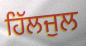
ਹਿੱਲਜੁਲ